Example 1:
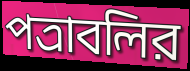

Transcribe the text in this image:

পত্রাবলির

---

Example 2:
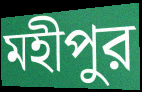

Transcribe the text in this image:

মহীপুর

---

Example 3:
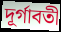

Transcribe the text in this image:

দূর্গাবতী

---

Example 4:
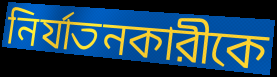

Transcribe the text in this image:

নির্যাতনকারীকে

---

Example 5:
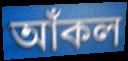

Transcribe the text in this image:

আঁকল